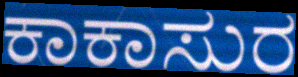
ಕಾಕಾಸುರ